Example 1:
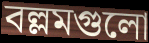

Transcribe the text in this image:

বল্লমগুলো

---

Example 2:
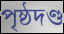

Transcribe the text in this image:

পৃষ্ঠদণ্ড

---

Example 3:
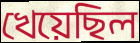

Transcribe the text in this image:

খেয়েছিল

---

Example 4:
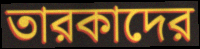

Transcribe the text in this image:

তারকাদের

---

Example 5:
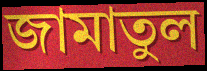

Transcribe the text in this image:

জামাতুল